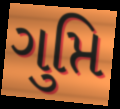
ગુપ્તિ